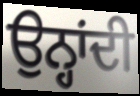
ਉਨ੍ਹਾਂਦੀ